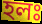
হলঃ